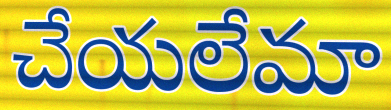
చేయలేమా